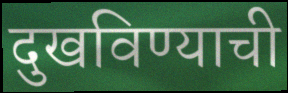
दुखविण्याची